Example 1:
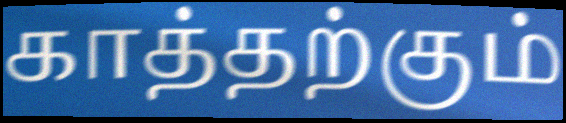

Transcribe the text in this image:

காத்தற்கும்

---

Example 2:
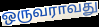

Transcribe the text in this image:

ஒருவராவது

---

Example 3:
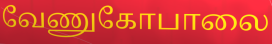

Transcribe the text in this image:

வேணுகோபாலை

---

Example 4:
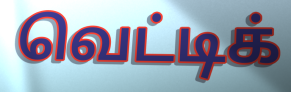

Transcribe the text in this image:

வெட்டிக்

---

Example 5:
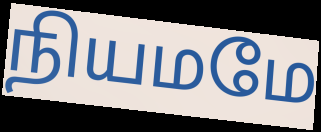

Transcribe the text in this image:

நியமமே